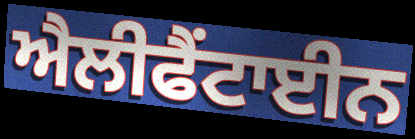
ਐਲੀਫੈਂਟਾਈਨ